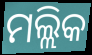
ମଲ୍ଲିକ